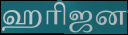
ஹரிஜன